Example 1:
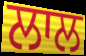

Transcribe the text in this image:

ਲਾਲ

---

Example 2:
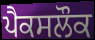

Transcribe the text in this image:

ਪੈਕਸਲੌਕ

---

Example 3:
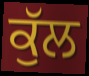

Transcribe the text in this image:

ਕੁੱਲ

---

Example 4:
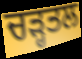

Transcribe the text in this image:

ਚੜ੍ਹਤਲ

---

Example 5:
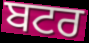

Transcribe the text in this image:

ਬਟਰ